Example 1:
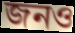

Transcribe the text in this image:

জনও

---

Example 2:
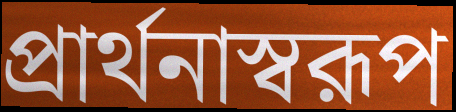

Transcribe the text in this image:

প্রার্থনাস্বরূপ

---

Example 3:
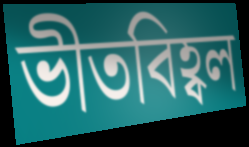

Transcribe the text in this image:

ভীতবিহ্বল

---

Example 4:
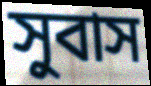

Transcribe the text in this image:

সুবাস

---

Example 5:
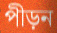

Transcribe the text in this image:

পীড়ন